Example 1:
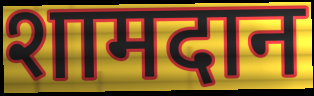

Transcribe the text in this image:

शामदान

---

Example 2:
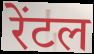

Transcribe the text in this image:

रेंटल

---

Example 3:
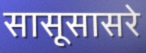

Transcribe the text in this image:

सासूसासरे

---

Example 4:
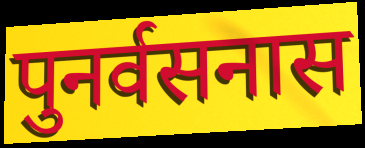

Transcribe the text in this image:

पुनर्वसनास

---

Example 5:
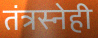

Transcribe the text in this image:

तंत्रस्नेही